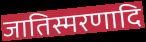
जातिस्मरणादि